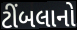
ટીંબલાનો